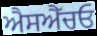
ਐਸਐੱਚਓ